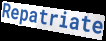
Repatriate